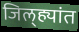
जिल्ह्यांत